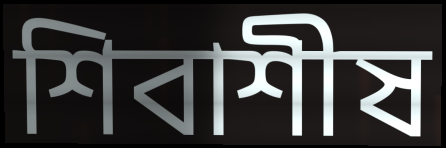
শিবাশীষ